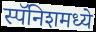
स्पॅनिशमध्ये